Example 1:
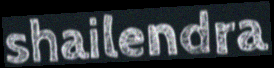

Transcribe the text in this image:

shailendra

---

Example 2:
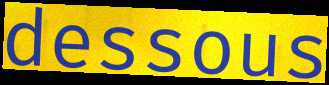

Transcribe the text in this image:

dessous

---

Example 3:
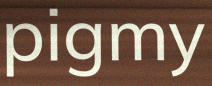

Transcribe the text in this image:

pigmy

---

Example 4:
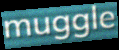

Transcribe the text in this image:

muggle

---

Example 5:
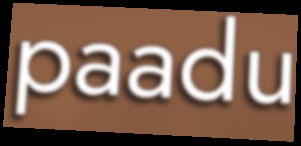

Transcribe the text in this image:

paadu